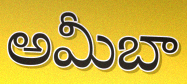
అమీబా